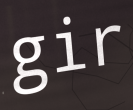
gir